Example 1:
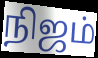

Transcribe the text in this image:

நிஜம்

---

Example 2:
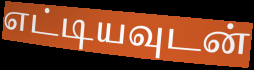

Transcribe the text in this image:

எட்டியவுடன்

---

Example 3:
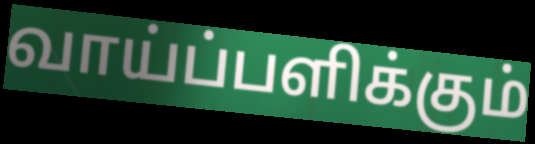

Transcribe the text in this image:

வாய்ப்பளிக்கும்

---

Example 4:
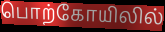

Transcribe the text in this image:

பொற்கோயிலில்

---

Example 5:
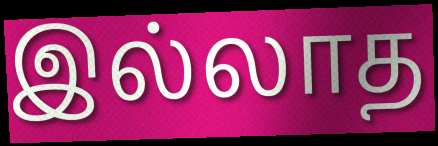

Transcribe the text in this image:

இல்லாத